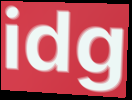
idg